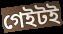
গেইটই